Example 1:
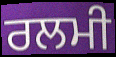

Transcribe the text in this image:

ਰਲਮੀ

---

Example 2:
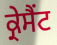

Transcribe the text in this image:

ਕ੍ਰੇਸੈਂਟ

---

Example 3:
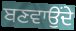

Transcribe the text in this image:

ਬਣਵਾਉਂਦੇ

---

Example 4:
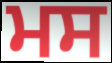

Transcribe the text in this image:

ਮਸ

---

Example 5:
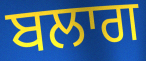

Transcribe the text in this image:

ਬਲਾਗ